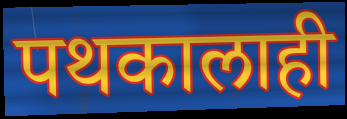
पथकालाही